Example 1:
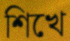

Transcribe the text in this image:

শিখে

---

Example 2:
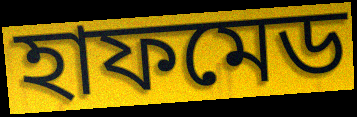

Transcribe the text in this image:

হাফমেড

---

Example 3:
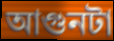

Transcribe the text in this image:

আগুনটা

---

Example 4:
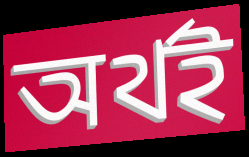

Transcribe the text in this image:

অর্থই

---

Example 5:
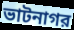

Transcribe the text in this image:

ভাটনাগর